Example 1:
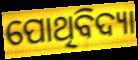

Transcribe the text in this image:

ପୋଥିବିଦ୍ୟା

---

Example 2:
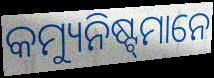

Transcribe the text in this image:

କମ୍ୟୁନିଷ୍ଟ୍‌ମାନେ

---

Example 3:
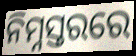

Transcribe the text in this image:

ନିମ୍ନସ୍ତରରେ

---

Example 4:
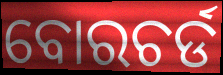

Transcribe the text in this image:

ବୋରଚର୍ଡ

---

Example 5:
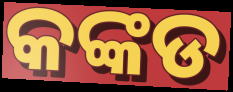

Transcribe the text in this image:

କଙ୍କଡ